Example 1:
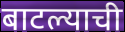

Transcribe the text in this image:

बाटल्याची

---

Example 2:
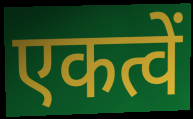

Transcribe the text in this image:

एकत्वें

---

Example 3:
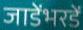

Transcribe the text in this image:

जाडेंभरडें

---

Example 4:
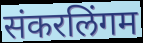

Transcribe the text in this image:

संकरलिंगम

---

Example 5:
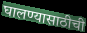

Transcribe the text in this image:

घालण्यासाठीची